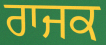
ਰਾਜਕ